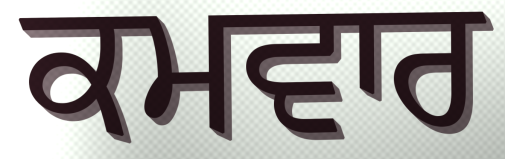
ਕਮਵਾਰ